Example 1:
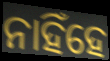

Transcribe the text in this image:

ନାହିଁହେ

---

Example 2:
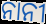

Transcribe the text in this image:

ନାନୀ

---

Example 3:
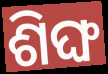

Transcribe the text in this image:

ଶିଙ୍ଘ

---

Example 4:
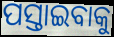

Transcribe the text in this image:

ପସ୍ତାଇବାକୁ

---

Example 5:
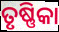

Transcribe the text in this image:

ତୃଷ୍ଣିକା